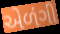
એળંગી